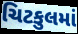
ચિટકુલમાં